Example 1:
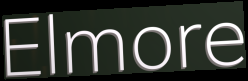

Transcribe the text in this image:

Elmore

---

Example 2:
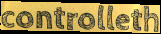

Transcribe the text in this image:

controlleth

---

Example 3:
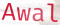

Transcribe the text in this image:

Awal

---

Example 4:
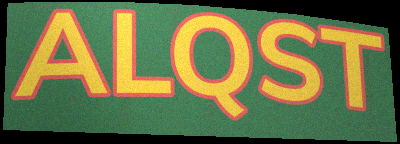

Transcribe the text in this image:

ALQST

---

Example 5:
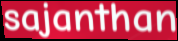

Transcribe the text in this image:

sajanthan